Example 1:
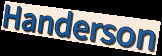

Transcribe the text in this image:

Handerson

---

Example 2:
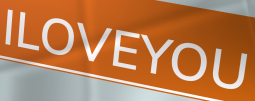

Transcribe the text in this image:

ILOVEYOU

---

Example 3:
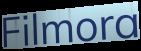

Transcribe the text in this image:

Filmora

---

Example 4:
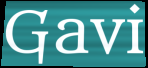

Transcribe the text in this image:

Gavi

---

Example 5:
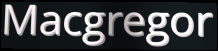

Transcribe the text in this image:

Macgregor